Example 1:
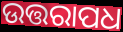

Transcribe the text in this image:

ଉତ୍ତରାପଧ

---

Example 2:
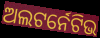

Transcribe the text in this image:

ଅଲଟର୍ନେଟିଭ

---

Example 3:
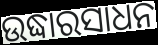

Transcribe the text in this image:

ଉଦ୍ଧାରସାଧନ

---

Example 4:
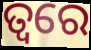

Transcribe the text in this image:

ତ୍ଵରେ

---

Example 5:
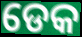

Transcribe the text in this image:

ଡେକ